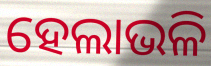
ହେଲାଭଳି